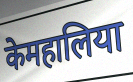
केमहालिया